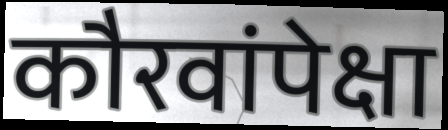
कौरवांपेक्षा